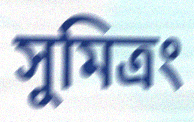
সুমিত্রং